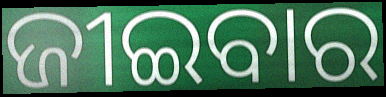
ଜୀଇବାର